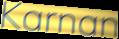
Karnan